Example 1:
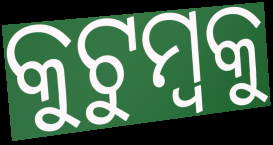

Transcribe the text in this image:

କୁଟୁମ୍ବକୁ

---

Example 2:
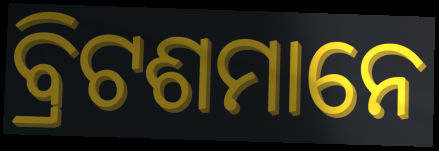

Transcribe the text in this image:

ବ୍ରିଟଶମାନେ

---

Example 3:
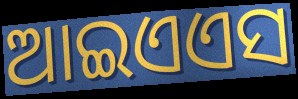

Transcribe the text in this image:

ଆଇଏଏସ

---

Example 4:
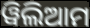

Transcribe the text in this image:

ୱିଲିଆମ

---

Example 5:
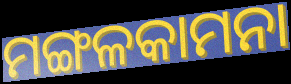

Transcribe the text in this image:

ମଙ୍ଗଳକାମନା